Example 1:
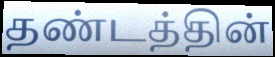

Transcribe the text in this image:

தண்டத்தின்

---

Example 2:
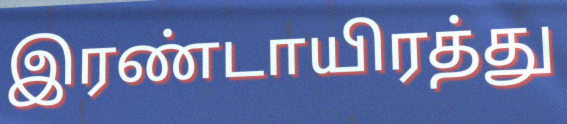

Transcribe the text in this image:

இரண்டாயிரத்து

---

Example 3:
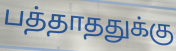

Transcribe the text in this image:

பத்தாததுக்கு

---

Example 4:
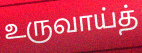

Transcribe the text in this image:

உருவாய்த்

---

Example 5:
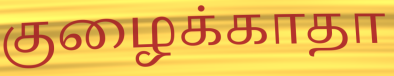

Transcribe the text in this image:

குழைக்காதா